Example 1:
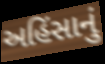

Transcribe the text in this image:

અહિંસાનું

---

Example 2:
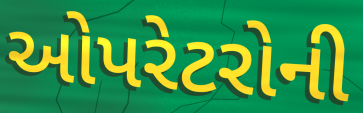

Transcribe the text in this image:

ઓપરેટરોની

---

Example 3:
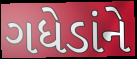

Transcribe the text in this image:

ગધેડાંને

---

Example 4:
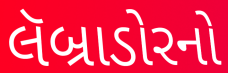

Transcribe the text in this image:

લૅબ્રાડોરનો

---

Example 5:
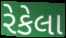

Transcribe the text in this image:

રેકેલા